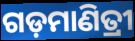
ଗଡ଼ମାଣିତ୍ରୀ